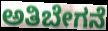
ಅತಿಬೇಗನೆ